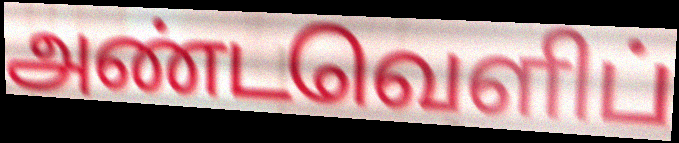
அண்டவெளிப்